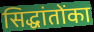
सिद्धांतोंका